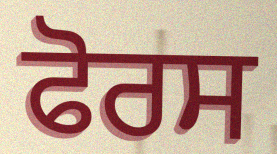
ਫੋਰਸ